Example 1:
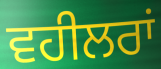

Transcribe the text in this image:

ਵਹੀਲਰਾਂ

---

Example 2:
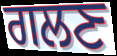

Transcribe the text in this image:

ਗਲਣ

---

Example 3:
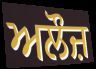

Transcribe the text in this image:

ਅਲੌਜ਼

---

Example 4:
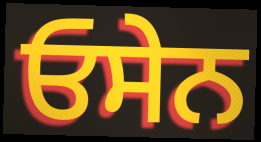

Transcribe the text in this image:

ਓਸੇਨ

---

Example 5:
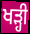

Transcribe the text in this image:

ਖੜ੍ਹੀ